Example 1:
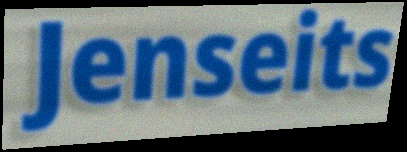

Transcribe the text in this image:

Jenseits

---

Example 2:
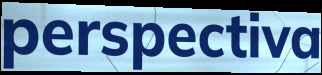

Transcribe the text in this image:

perspectiva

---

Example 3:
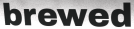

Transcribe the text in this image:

brewed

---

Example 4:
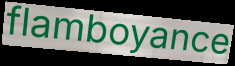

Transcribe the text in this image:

flamboyance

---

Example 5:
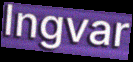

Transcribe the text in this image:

Ingvar